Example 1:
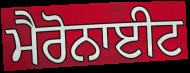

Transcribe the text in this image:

ਮੈਰੋਨਾਈਟ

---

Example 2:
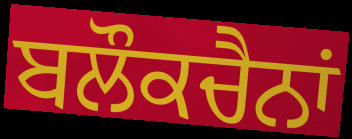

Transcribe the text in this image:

ਬਲੌਕਚੈਨਾਂ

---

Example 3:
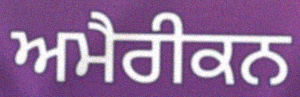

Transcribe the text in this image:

ਅਮੈਰੀਕਨ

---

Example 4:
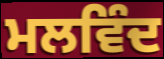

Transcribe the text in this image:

ਮਲਵਿੰਦ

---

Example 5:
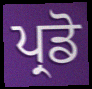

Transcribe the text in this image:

ਪ੍ਰਡੋ